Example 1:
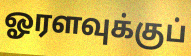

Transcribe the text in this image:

ஓரளவுக்குப்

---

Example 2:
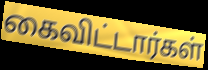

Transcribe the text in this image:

கைவிட்டார்கள்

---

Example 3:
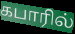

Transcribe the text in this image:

கபாரில்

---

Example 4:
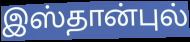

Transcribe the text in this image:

இஸ்தான்புல்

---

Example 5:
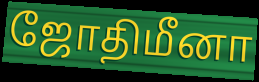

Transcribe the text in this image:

ஜோதிமீனா